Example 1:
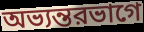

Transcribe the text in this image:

অভ্যন্তরভাগে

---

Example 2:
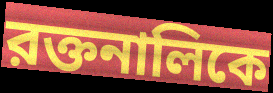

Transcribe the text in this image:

রক্তনালিকে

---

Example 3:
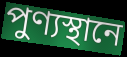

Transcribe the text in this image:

পুণ্যস্থানে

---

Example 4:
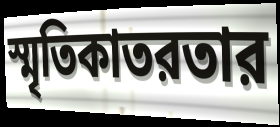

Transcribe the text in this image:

স্মৃতিকাতরতার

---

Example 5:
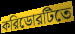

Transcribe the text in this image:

করিডোরটিতে